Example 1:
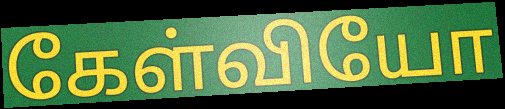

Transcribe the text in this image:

கேள்வியோ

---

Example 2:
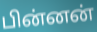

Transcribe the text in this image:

பின்னன்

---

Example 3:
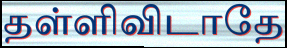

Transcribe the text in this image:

தள்ளிவிடாதே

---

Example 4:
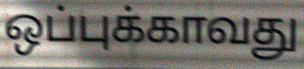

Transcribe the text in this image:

ஒப்புக்காவது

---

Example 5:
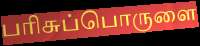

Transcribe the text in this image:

பரிசுப்பொருளை